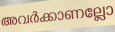
അവർക്കാണല്ലോ